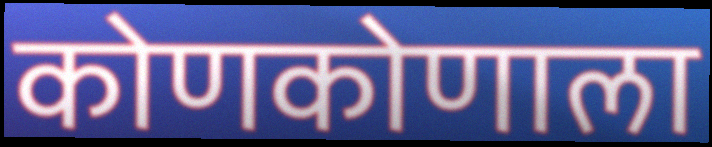
कोणकोणाला